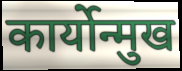
कार्योन्मुख